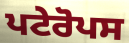
ਪਟੇਰੋਪਸ